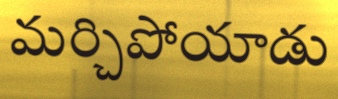
మర్చిపోయాడు